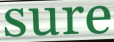
sure